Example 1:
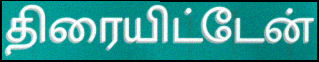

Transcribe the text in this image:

திரையிட்டேன்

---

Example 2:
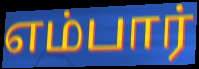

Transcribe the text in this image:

எம்பார்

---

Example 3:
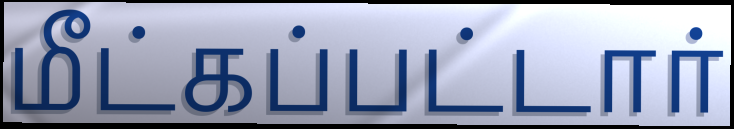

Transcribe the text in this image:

மீட்கப்பட்டார்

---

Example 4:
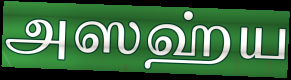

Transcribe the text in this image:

அஸஹ்ய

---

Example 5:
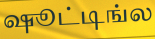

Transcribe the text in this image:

ஷூட்டிங்ல